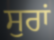
ਸੁਰਾਂ